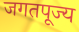
जगतपूज्य